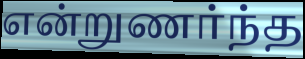
என்றுணர்ந்த